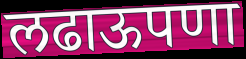
लढाऊपणा